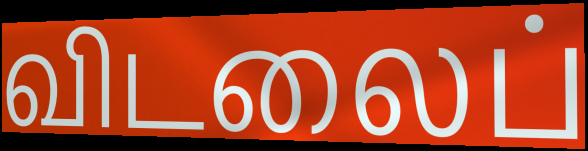
விடலைப்